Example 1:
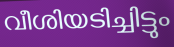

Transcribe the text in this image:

വീശിയടിച്ചിട്ടും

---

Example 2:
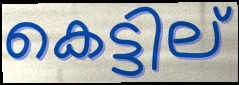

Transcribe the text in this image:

കെട്ടില്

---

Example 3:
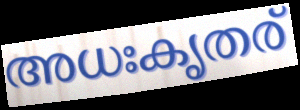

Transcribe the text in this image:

അധഃകൃതര്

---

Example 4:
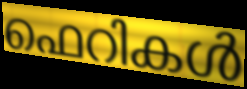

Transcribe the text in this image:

ഫെറികൾ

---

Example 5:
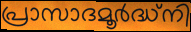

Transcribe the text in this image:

പ്രാസാദമൂർദ്ധ്നി